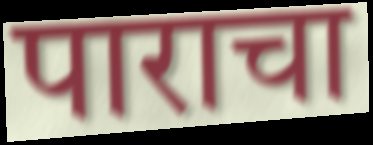
पाराचा